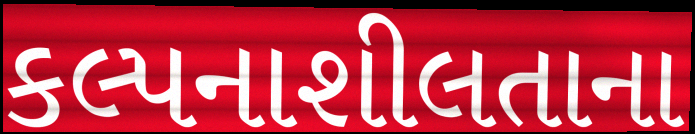
કલ્પનાશીલતાના